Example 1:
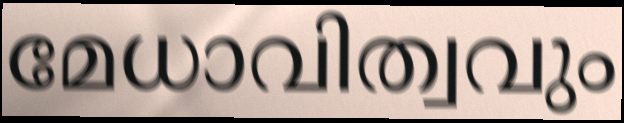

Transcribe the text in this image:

മേധാവിത്വവും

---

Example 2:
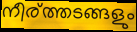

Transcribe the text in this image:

നീര്ത്തടങ്ങളും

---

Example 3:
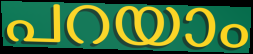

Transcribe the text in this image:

പറയാം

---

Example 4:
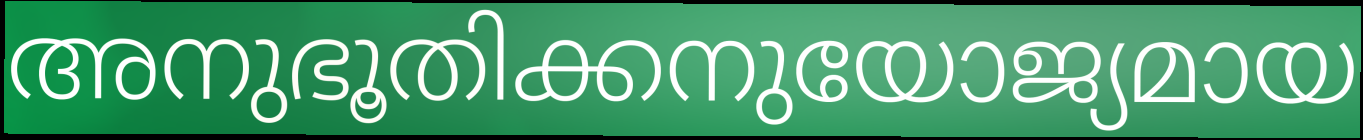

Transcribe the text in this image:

അനുഭൂതിക്കനുയോജ്യമായ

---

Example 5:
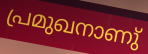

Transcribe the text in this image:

പ്രമുഖനാണു്